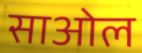
साओल